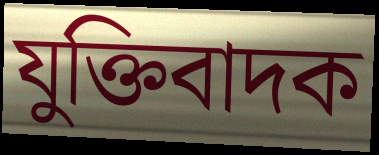
যুক্তিবাদক